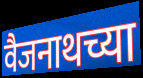
वैजनाथच्या